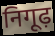
निगूढ़